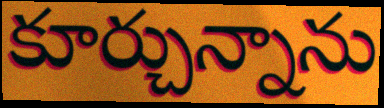
కూర్చున్నాను